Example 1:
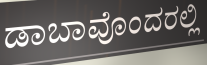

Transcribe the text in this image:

ಡಾಬಾವೊಂದರಲ್ಲಿ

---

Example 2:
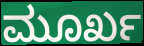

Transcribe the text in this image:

ಮೂರ್ಖ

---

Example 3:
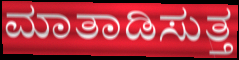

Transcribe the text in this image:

ಮಾತಾಡಿಸುತ್ತ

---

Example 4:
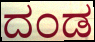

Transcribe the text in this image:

ದಂಡ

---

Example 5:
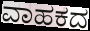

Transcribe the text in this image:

ವಾಹಕದ